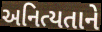
અનિત્યતાને